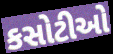
કસોટીઓ